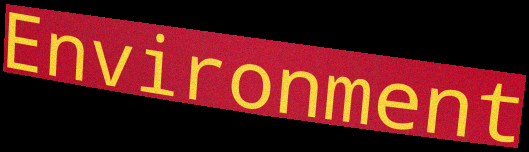
Environment